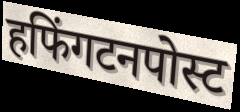
हफिंगटनपोस्ट